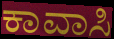
ಕಾವಾಸಿ